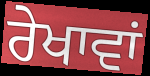
ਰੇਖਾਵਾਂ